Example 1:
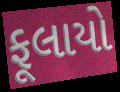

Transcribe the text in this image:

ફૂલાયો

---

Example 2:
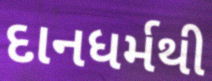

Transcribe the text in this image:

દાનધર્મથી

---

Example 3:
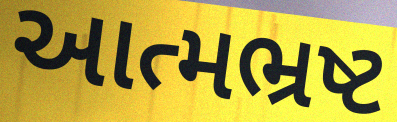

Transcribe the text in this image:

આત્મભ્રષ્ટ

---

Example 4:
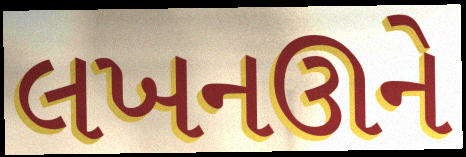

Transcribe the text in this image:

લખનઊને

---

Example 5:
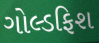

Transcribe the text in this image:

ગોલ્ડફિશ